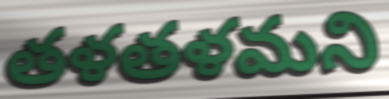
తళతళమని